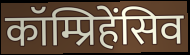
कॉम्प्रिहेंसिव